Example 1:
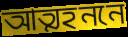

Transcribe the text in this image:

আত্মহননে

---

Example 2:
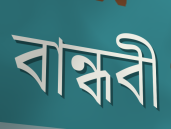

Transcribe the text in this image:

বান্ধবী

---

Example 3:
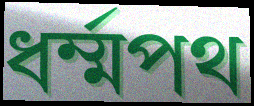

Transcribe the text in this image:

ধর্ম্মপথ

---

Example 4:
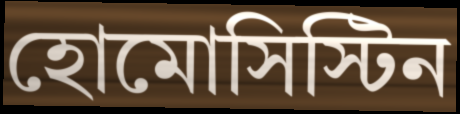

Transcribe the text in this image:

হোমোসিস্টিন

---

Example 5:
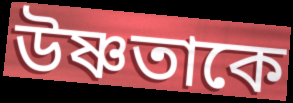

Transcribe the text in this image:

উষ্ণতাকে